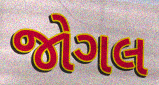
જોગલ